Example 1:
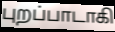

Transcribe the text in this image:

புறப்பாடாகி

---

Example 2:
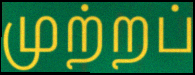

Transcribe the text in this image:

முற்றப்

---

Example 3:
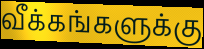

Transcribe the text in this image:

வீக்கங்களுக்கு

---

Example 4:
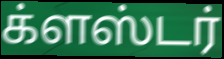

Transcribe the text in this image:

க்ளஸ்டர்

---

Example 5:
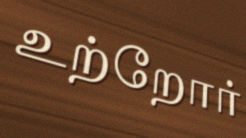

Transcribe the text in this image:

உற்றோர்